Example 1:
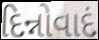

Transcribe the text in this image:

દિન્નોવાદં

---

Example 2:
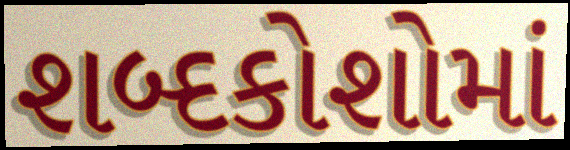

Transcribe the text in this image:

શબ્દકોશોમાં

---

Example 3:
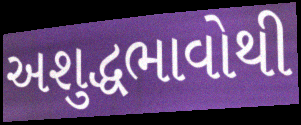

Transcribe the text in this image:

અશુદ્ધભાવોથી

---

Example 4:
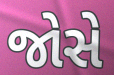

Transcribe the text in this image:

જોસે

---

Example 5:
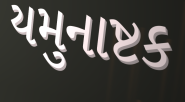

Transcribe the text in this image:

યમુનાષ્ટક